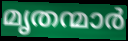
മൃതന്മാർ